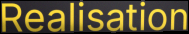
Realisation